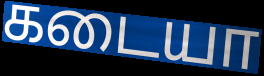
கடையா